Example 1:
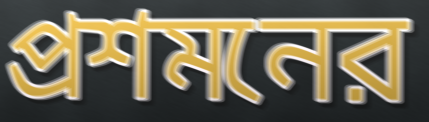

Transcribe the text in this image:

প্রশমনের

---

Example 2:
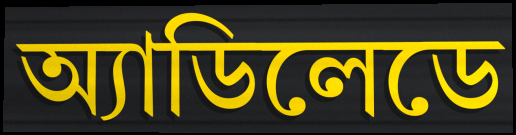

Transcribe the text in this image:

অ্যাডিলেডে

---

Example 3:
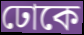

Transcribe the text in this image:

ঢোকে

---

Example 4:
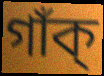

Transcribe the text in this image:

গাঁক্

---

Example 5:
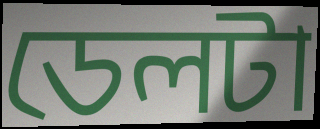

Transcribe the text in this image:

ডেলটা